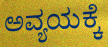
ಅವ್ಯಯಕ್ಕೆ